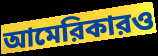
আমেরিকারও